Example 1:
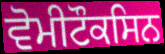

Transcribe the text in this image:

ਵੋਮੀਟੌਕਸਿਨ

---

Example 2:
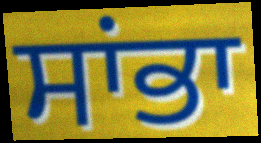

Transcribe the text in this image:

ਸਾਂਭਾ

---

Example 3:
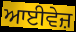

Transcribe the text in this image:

ਆਈਵੇਜ਼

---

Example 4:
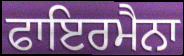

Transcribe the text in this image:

ਫਾਇਰਮੈਨਾ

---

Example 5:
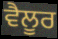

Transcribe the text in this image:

ਵੈਲੂਰ